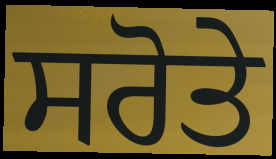
ਸਰੋਤੇ